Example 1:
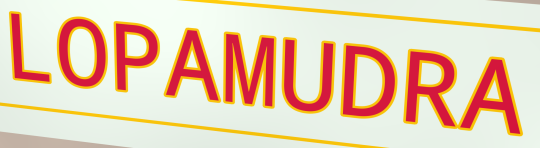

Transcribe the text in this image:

LOPAMUDRA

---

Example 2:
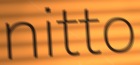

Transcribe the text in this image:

nitto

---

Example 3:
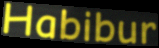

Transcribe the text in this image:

Habibur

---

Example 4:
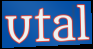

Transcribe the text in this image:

utal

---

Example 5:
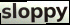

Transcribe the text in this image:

sloppy